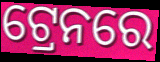
ଟ୍ରେନରେ